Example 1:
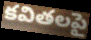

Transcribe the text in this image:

కవితలపై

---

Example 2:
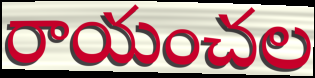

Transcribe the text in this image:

రాయంచల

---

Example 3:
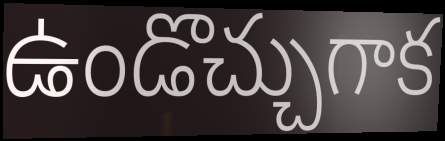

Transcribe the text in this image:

ఉండొచ్చుగాక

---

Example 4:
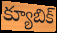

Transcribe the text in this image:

క్యూబిక్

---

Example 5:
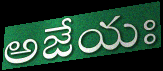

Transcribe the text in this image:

అజేయః